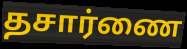
தசார்ணை